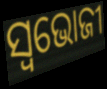
ସ୍ବଭୋଜୀ